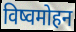
विष्वमोहन